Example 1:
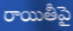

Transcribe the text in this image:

రాయితీపై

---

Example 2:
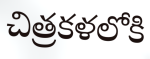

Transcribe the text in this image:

చిత్రకళలోకి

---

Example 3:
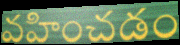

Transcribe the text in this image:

వహించడం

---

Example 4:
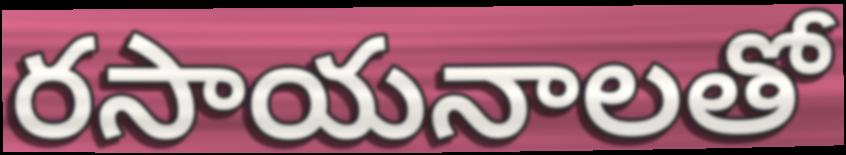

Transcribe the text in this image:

రసాయనాలతో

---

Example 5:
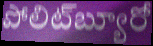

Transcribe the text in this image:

పోలిట్‌బ్యూరో